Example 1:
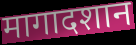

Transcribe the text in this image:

मागादशान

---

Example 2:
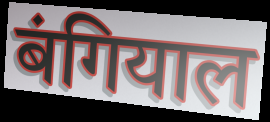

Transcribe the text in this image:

बंगियाल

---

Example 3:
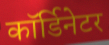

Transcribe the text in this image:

कॉर्डिनेटर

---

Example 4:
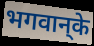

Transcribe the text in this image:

भगवान्‌के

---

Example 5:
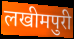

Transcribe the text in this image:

लखीमपुरी